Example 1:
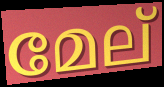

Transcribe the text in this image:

മേല്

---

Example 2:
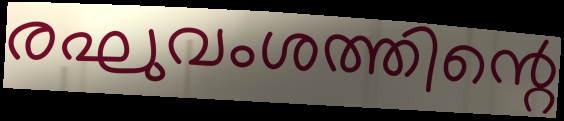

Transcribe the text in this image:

രഘുവംശത്തിന്റെ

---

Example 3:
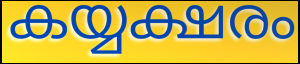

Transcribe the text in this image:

കയ്യക്ഷരം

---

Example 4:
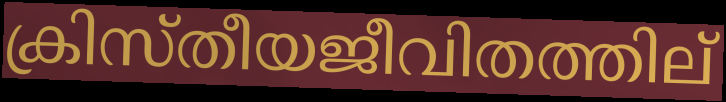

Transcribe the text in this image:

ക്രിസ്തീയജീവിതത്തില്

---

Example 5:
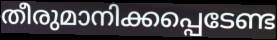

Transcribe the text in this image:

തീരുമാനിക്കപ്പെടേണ്ട